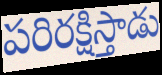
పరిరక్షిస్తాడు